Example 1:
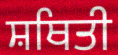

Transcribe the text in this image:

ਸ਼ਥਿਤੀ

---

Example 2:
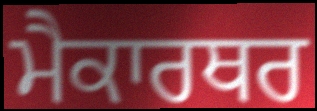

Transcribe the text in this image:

ਮੈਕਾਰਥਰ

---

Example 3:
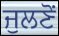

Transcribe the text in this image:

ਜੁਲਣੋਂ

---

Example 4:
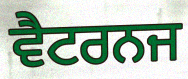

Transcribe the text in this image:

ਵੈਟਰਨਜ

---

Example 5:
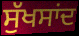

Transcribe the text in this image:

ਸੁੱਖਸਾਂਦ